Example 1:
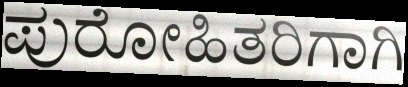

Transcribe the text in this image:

ಪುರೋಹಿತರಿಗಾಗಿ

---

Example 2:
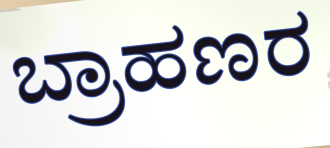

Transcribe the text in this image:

ಬ್ರಾಹಣರ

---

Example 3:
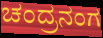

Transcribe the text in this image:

ಚಂದ್ರನಂಗ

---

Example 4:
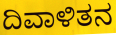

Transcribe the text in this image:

ದಿವಾಳಿತನ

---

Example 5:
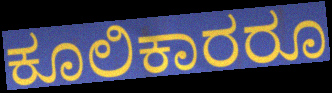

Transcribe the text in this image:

ಕೂಲಿಕಾರರೂ